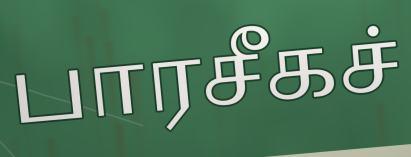
பாரசீகச்